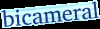
bicameral